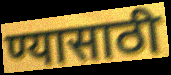
ण्यासाठी